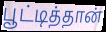
பூட்டித்தான்